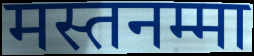
मस्तनम्मा